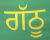
ਗੱਠੂ